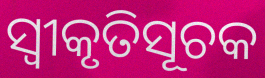
ସ୍ଵୀକୃତିସୂଚକ